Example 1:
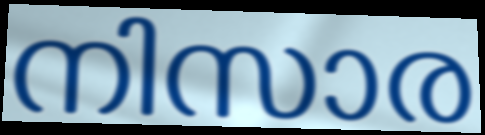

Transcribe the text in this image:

നിസാര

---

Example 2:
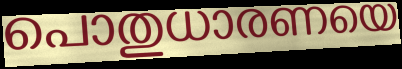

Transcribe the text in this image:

പൊതുധാരണയെ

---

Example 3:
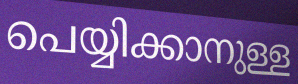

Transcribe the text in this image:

പെയ്യിക്കാനുള്ള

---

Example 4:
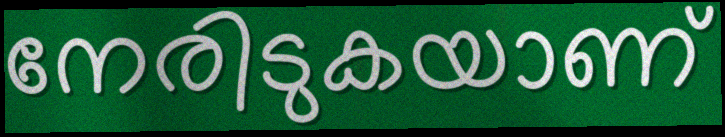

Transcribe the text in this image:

നേരിടുകയാണ്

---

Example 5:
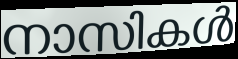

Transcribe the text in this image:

നാസികൾ